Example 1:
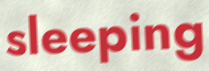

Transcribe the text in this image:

sleeping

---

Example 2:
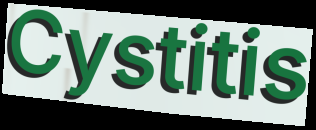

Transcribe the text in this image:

Cystitis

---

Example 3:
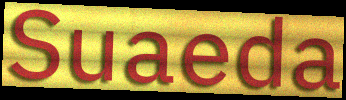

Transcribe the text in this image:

Suaeda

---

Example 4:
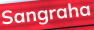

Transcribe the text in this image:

Sangraha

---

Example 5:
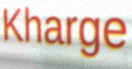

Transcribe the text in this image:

Kharge